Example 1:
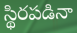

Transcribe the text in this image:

స్థిరపడినా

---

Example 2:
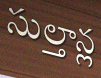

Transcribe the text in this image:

సుల్తాన్ల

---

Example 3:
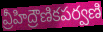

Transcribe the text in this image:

వ్రీహిద్రౌణికపర్వణి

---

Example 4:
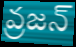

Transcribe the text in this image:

వ్రజన్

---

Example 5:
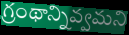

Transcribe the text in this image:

గ్రంథాన్నివ్వమని